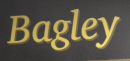
Bagley